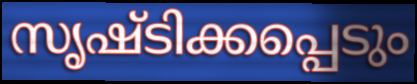
സൃഷ്ടിക്കപ്പെടും